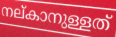
നല്കാനുള്ളത്